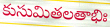
కుసుమితలతాభిః